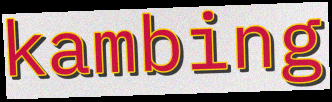
kambing